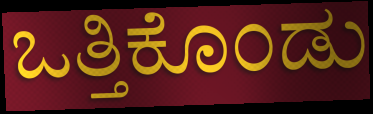
ಒತ್ತಿಕೊಂಡು